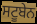
ਸਟੂਬੇਨ